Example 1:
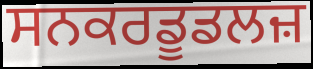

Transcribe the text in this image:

ਸਨਕਰਡੂਡਲਜ਼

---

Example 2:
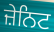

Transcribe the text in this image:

ਜ਼ੇਨਿਟ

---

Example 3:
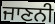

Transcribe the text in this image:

ਜਾਣਨੀ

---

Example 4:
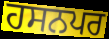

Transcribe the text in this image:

ਹਸਨਪਰ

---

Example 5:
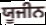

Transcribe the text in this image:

ਯੂਜੀਨ